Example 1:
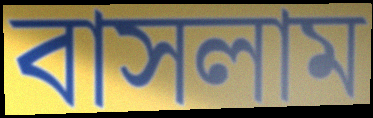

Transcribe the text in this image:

বাসলাম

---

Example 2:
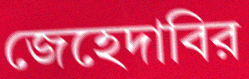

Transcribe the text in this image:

জেহেদাবির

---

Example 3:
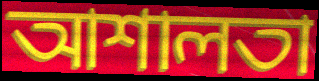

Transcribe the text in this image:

আশালতা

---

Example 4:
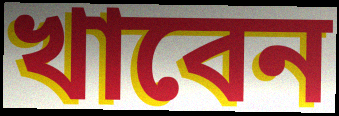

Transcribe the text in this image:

খাবেন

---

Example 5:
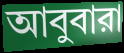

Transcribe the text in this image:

আবুবারা